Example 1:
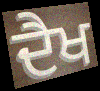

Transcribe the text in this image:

ਦੈਖ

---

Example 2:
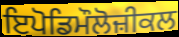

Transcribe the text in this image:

ਇਪੋਡਿਮੌਲੋਜ਼ੀਕਲ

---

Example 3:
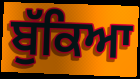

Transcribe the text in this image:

ਬੁੱਕਿਆ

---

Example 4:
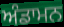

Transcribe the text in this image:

ਅੰਡਾਮਨ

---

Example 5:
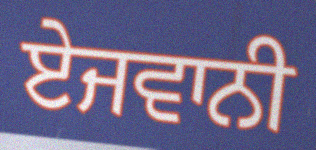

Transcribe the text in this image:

ਏਜਵਾਨੀ